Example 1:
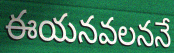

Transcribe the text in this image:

ఈయనవలననే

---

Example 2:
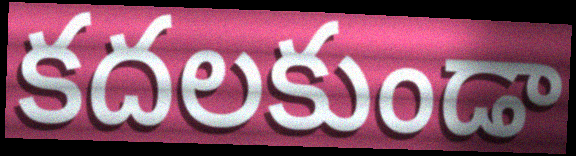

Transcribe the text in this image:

కదలకుండా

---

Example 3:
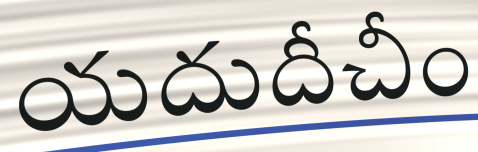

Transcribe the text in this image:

యదుదీచీం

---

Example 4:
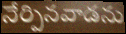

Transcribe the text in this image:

నేర్పినవాడను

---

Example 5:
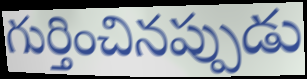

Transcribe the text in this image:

గుర్తించినప్పుడు